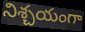
నిశ్చయంగా